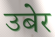
उबेर